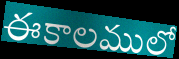
ఈకాలములో